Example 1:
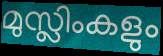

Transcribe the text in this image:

മുസ്ലിംകളും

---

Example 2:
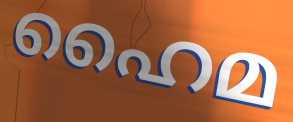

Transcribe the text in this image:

ഹൈമ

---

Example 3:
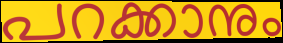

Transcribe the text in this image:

പറക്കാനും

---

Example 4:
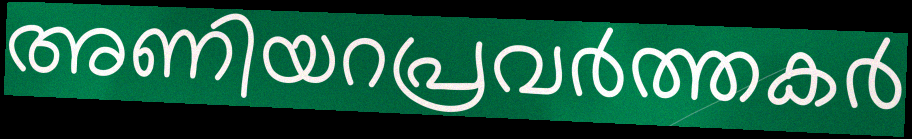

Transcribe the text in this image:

അണിയറപ്രവർത്തകർ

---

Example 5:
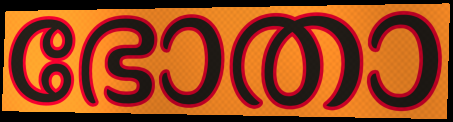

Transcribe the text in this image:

ഭോതാ